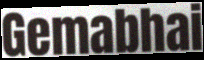
Gemabhai